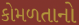
કોમળતાનો